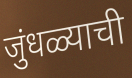
जुंधळ्याची